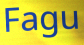
Fagu